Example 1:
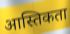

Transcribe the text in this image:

आस्तिकता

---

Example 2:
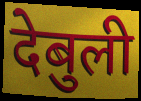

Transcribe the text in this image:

देबुली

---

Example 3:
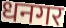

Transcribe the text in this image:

धनगर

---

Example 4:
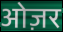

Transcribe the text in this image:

ओज़र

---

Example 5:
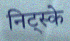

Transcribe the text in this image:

निट्स्के